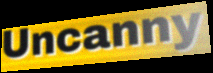
Uncanny